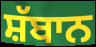
ਸ਼ੱਬਾਨ